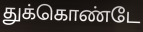
துக்கொண்டே